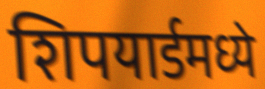
शिपयार्डमध्ये